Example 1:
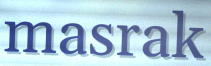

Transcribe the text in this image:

masrak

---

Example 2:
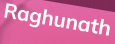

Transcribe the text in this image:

Raghunath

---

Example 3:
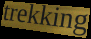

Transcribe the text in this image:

trekking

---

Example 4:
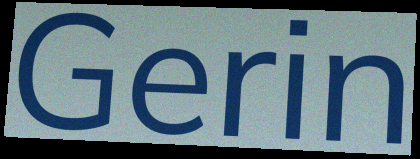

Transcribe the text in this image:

Gerin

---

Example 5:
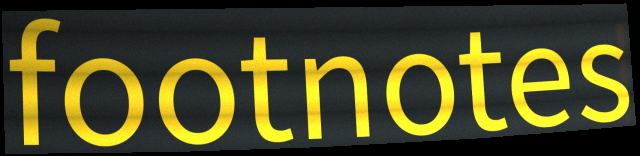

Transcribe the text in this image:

footnotes